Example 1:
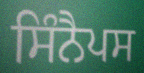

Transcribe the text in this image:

ਸਿੰਨੈਪਸ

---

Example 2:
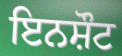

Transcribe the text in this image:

ਇਨਸ਼ੌਟ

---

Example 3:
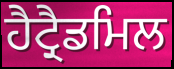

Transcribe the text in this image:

ਹੈਟ੍ਰੈਡਮਿਲ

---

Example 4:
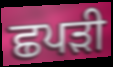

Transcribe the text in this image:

ਛਪੜੀ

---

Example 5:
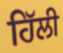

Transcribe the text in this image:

ਹਿੱਲੀ